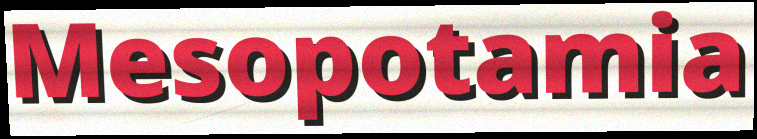
Mesopotamia